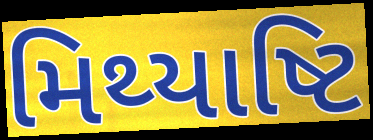
મિથ્યાષ્ટિ